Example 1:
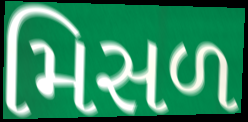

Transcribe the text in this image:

મિસળ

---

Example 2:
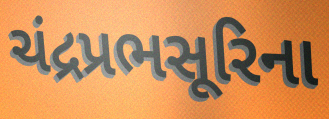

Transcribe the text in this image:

ચંદ્રપ્રભસૂરિના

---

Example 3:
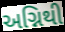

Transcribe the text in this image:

અગ્નિથી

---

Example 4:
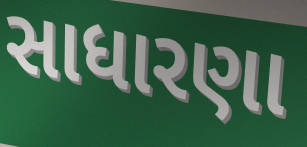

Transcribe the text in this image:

સાધારણા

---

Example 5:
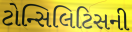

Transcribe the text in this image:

ટોન્સિલિટિસની